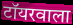
टॉयरवाला